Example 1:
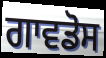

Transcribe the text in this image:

ਗਾਵਡੋਸ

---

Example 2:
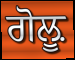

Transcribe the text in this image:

ਗੋਲ਼ੂ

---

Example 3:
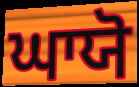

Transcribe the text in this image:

ਘਾਯੋ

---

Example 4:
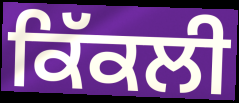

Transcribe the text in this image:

ਕਿੱਕਲੀ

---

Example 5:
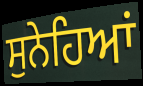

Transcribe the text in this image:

ਸੁਨੇਹਿਆਂ